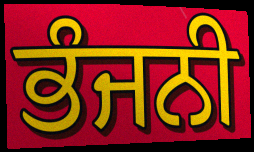
ਭੰਜਨੀ